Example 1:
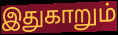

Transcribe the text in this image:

இதுகாறும்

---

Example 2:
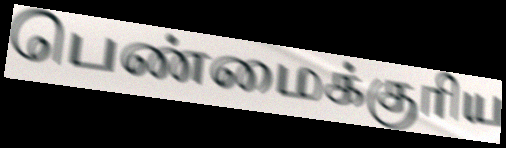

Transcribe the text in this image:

பெண்மைக்குரிய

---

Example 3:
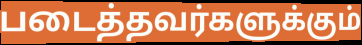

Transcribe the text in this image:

படைத்தவர்களுக்கும்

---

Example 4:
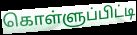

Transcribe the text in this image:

கொள்ளுப்பிட்டி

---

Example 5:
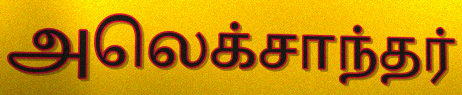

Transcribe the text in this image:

அலெக்சாந்தர்